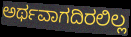
ಅರ್ಥವಾಗದಿರಲಿಲ್ಲ